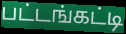
பட்டங்கட்டி